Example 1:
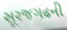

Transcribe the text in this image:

સૂરજગઢની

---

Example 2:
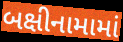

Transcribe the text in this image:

બક્ષીનામામાં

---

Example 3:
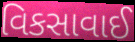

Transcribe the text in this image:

વિકસાવાઈ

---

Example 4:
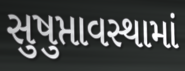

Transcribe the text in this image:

સુષુપ્તાવસ્થામાં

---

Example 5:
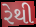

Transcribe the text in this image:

રેથી